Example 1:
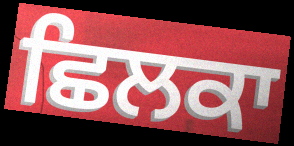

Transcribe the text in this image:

ਛਿਲਕਾ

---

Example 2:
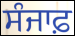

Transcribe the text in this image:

ਸੰਜਾਫ਼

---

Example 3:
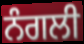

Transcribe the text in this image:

ਨੰਗਲੀ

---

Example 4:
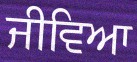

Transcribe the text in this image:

ਜੀਵਿਆ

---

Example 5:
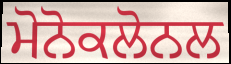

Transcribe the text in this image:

ਮੋਨੋਕਲੋਨਲ